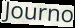
Journo